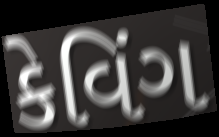
કેવિંગ